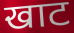
खाट